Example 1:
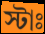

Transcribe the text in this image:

স্টাঃ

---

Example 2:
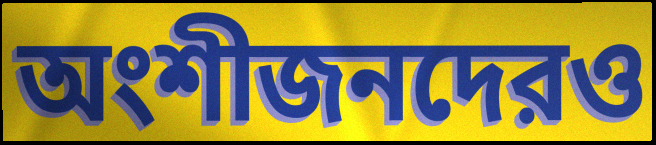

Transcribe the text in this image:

অংশীজনদেরও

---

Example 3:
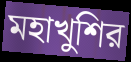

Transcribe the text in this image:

মহাখুশির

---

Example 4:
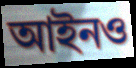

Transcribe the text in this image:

আইনও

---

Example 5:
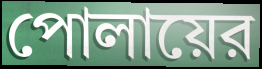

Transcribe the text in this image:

পোলায়ের